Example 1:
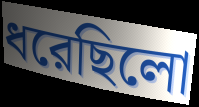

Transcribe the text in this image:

ধরেছিলো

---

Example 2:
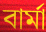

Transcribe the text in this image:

বার্মা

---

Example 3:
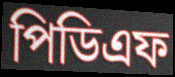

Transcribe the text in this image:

পিডিএফ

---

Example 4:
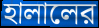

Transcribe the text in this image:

হালালের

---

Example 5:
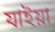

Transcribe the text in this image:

যাইয়া